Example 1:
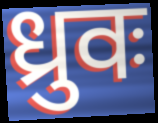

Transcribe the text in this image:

ध्रुवः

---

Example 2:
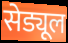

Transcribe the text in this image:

सेड्यूल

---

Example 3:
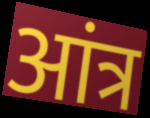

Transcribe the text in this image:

आंत्र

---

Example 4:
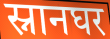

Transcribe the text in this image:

स्नानघर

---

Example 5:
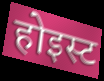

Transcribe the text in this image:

होइस्ट